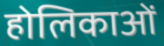
होलिकाओं